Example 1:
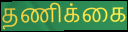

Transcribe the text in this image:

தணிக்கை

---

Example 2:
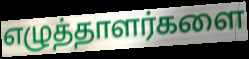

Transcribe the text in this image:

எழுத்தாளர்களை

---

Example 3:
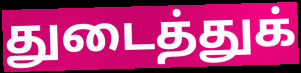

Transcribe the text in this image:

துடைத்துக்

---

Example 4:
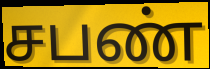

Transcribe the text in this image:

சபண்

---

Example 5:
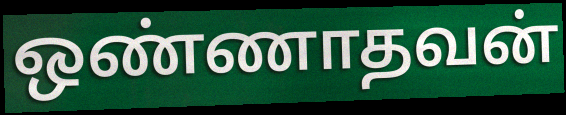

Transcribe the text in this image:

ஒண்ணாதவன்